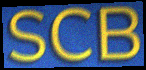
SCB